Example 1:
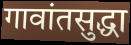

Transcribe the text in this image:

गावांतसुद्धा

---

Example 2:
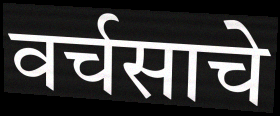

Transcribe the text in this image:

वर्चसाचे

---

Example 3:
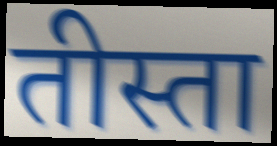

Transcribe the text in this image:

तीस्ता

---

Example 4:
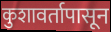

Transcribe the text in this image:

कुशावर्तापासून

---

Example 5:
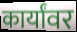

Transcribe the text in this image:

कार्यांवर